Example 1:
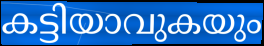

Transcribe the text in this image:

കട്ടിയാവുകയും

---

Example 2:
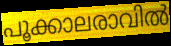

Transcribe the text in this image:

പൂക്കാലരാവിൽ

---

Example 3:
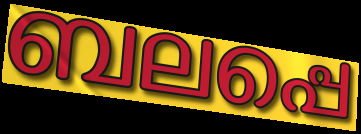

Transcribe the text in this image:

ബലപ്പെ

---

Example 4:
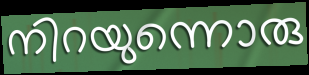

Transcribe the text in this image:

നിറയുന്നൊരു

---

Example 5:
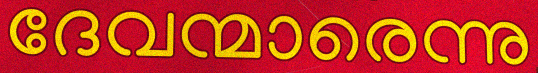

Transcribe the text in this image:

ദേവന്മാരെന്നു